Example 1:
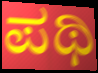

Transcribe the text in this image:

ಪಥಿ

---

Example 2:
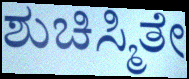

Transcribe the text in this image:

ಶುಚಿಸ್ಮಿತೇ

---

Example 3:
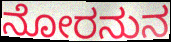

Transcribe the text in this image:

ನೋರನುನ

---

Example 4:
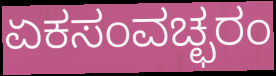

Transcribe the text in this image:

ಏಕಸಂವಚ್ಛರಂ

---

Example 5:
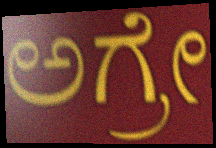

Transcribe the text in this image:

ಅಗ್ರೇ